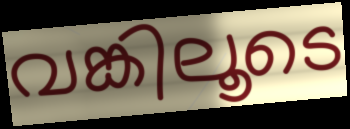
വങ്കിലൂടെ